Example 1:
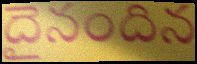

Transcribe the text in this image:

దైనందిన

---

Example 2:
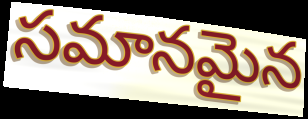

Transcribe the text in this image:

సమానమైన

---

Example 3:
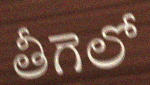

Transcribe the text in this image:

తీగెలో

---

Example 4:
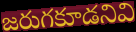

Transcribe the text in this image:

జరుగకూడనివి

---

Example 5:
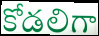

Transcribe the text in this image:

కోడలిగా